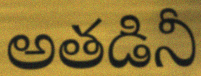
అతడినీ